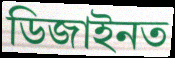
ডিজাইনত